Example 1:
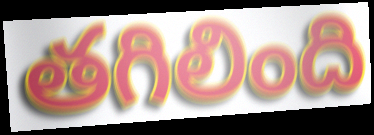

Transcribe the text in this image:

తగిలింది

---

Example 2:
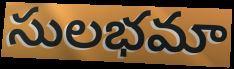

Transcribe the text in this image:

సులభమా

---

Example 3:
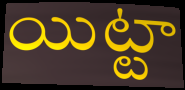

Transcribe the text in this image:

యిట్టా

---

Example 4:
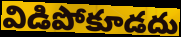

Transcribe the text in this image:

విడిపోకూడదు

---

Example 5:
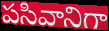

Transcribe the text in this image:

పసివానిగా